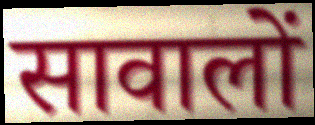
सावालों